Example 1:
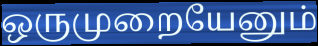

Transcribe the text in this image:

ஒருமுறையேனும்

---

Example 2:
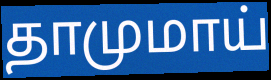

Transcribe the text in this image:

தாமுமாய்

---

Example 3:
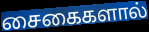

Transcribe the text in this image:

சைகைகளால்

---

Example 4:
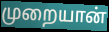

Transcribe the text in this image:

முறையான்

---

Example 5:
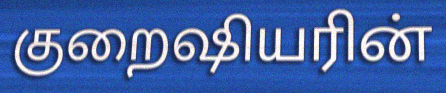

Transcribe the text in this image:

குறைஷியரின்